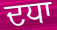
ਦਧਾ